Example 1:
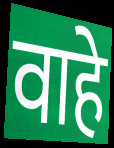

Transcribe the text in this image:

वाहे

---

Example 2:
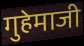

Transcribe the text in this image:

गुहेमाजी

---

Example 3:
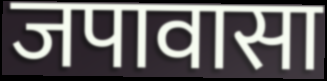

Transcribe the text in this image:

जपावासा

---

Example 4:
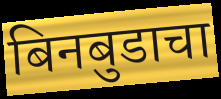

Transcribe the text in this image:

बिनबुडाचा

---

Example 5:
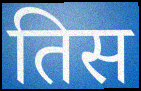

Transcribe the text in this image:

तिस